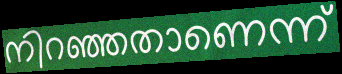
നിറഞ്ഞതാണെന്ന്